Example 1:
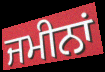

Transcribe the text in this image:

ਜਮੀਨਾਂ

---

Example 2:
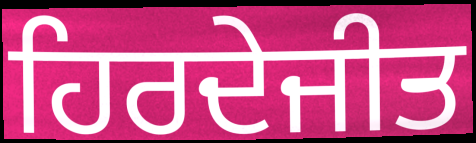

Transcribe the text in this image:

ਹਿਰਦੇਜੀਤ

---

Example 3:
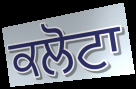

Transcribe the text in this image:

ਕਲੋਟਾ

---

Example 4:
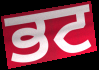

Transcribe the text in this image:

ਭਟ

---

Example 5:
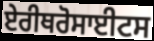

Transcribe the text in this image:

ਏਰੀਥਰੋਸਾਈਟਸ